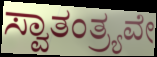
ಸ್ವಾತಂತ್ರ್ಯವೇ